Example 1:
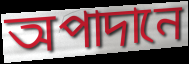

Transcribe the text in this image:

অপাদানে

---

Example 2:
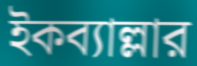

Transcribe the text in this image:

ইকব্যাল্লার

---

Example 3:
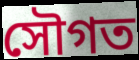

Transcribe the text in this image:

সৌগত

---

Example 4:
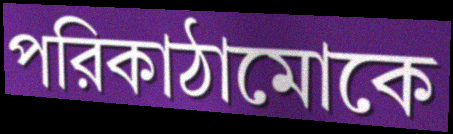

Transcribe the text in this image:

পরিকাঠামোকে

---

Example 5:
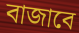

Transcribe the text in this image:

বাজাবে